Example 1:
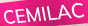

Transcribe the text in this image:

CEMILAC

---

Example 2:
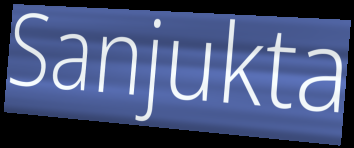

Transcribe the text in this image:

Sanjukta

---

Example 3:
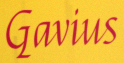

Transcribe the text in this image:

Gavius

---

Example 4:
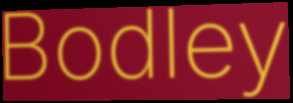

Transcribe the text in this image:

Bodley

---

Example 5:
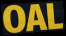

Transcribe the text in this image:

OAL